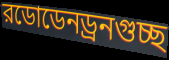
রডোডেনড্রনগুচ্ছ